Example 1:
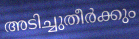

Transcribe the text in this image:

അടിച്ചുതീർക്കും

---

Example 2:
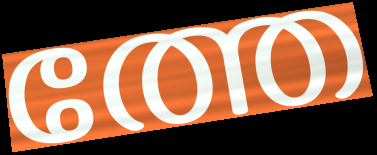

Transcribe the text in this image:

ത്തേ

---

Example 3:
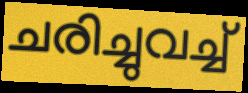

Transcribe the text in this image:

ചരിച്ചുവച്ച്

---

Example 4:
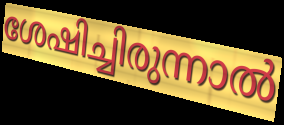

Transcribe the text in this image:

ശേഷിച്ചിരുന്നാൽ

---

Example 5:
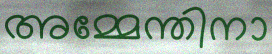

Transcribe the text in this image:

അമ്മേന്തിനാ